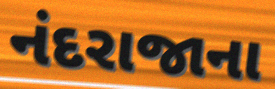
નંદરાજાના